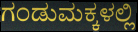
ಗಂಡುಮಕ್ಕಳಲ್ಲಿ